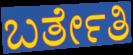
ಬರ್ತೇತಿ